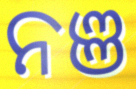
ନଞ